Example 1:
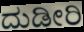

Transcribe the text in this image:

ದುಡೀರಿ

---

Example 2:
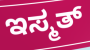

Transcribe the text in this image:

ಇಸ್ಮತ್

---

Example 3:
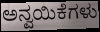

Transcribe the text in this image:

ಅನ್ವಯಿಕೆಗಳು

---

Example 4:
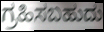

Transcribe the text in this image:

ಗ್ರಹಿಸಬಹುದು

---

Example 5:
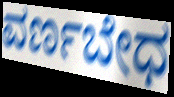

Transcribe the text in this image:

ವರ್ಣಬೇಧ